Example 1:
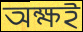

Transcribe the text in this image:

অক্ষই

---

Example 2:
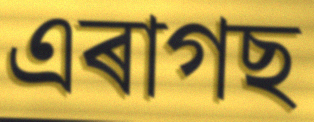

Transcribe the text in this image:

এৰাগছ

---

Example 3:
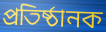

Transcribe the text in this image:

প্ৰতিষ্ঠানক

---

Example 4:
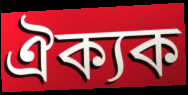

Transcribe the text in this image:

ঐক্যক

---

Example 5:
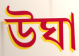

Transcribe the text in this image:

উঘা